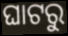
ଘାଟରୁ